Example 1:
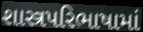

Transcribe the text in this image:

શાસ્ત્રપરિભાષામાં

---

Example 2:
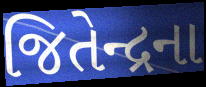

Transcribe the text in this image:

જિતેન્દ્રના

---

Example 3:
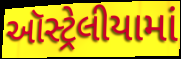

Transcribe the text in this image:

ઑસ્ટ્રેલીયામાં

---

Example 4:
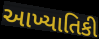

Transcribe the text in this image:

આખ્યાતિકી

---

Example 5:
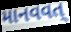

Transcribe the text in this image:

માનવવત્